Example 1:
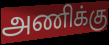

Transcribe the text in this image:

அணிக்கு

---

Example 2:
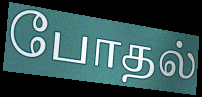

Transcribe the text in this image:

போதல்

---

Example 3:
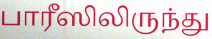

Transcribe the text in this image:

பாரீஸிலிருந்து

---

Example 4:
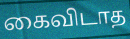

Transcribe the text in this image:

கைவிடாத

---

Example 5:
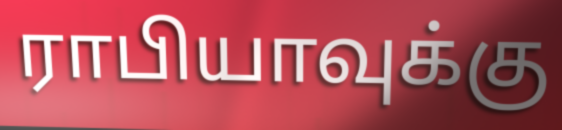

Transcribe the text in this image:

ராபியாவுக்கு